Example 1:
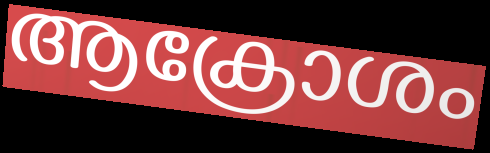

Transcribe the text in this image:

ആക്രോശം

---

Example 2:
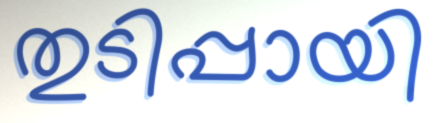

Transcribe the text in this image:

തുടിപ്പായി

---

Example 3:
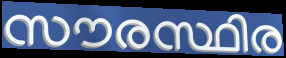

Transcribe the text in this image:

സൗരസ്ഥിര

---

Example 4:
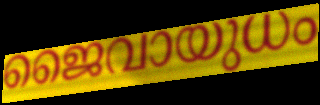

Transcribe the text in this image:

ജൈവായുധം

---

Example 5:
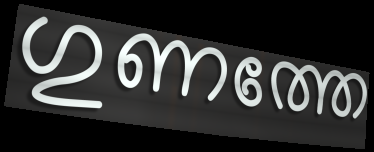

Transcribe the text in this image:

ഗുണത്തേ